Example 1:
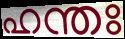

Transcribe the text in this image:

ഹന്തഃ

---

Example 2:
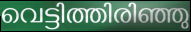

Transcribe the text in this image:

വെട്ടിത്തിരിഞ്ഞു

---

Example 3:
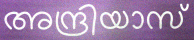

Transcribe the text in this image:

അന്ദ്രിയാസ്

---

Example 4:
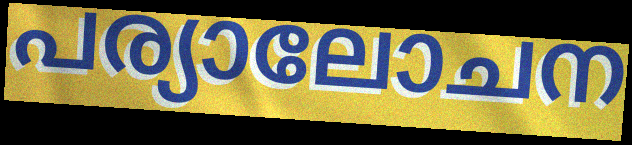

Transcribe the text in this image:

പര്യാലോചന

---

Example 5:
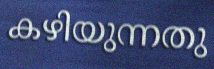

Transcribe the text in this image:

കഴിയുന്നതു